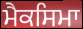
ਮੈਕਸਿਮਾ